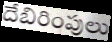
దేబిరింపులు